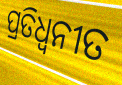
ପ୍ରତିଧ୍ବନୀତ